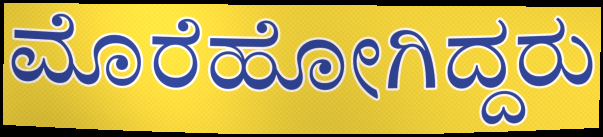
ಮೊರೆಹೋಗಿದ್ದರು